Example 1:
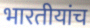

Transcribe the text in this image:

भारतीयांच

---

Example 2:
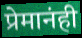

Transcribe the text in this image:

प्रेमानंही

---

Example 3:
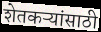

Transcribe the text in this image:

शेतकऱ्यांसाठी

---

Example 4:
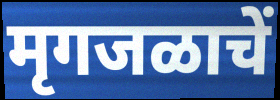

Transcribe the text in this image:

मृगजळाचें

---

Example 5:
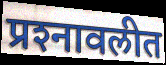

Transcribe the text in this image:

प्रश्नावलीत